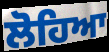
ਲੋਹਿਆ